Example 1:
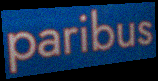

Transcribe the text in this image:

paribus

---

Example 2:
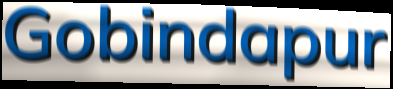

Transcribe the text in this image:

Gobindapur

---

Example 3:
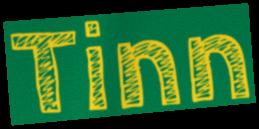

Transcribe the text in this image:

Tinn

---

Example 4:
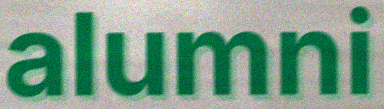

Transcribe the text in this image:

alumni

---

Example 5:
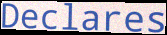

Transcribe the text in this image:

Declares